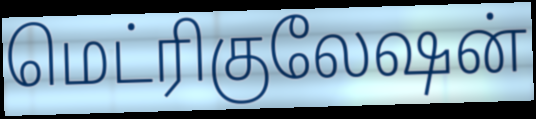
மெட்ரிகுலேஷன்